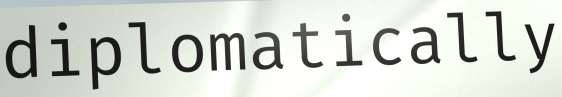
diplomatically